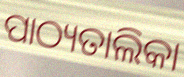
ପାଠ୍ୟତାଲିକା